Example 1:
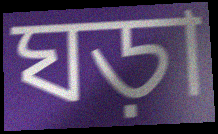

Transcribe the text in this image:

ঘড়া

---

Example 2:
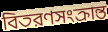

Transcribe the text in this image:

বিতরণসংক্রান্ত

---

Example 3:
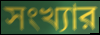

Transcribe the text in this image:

সংখ্যার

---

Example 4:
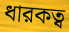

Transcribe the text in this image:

ধারকত্ব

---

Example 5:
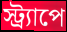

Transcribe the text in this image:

স্ট্র্যাপে